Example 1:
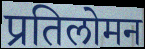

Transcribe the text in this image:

प्रतिलोमन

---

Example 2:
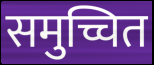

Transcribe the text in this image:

समुच्चित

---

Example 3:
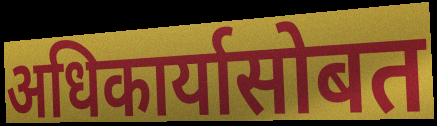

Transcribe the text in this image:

अधिकार्यासोबत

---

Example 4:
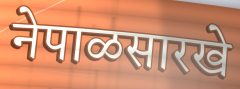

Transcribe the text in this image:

नेपाळसारखे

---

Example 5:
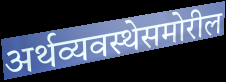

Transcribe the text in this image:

अर्थव्यवस्थेसमोरील